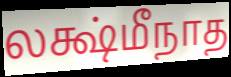
லக்ஷ்மீநாத